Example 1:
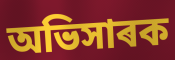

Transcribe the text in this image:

অভিসাৰক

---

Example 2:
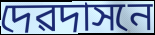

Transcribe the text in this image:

দেৱদাসনে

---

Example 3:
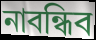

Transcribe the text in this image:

নাবন্ধিব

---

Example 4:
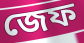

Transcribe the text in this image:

জেফ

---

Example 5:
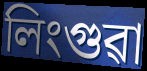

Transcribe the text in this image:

লিংগুৱা